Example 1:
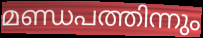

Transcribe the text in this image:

മണ്ഡപത്തിന്നും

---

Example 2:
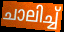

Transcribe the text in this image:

ചാലിച്ച്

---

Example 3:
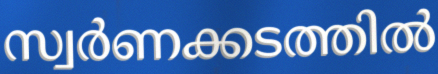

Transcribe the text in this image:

സ്വർണക്കടത്തിൽ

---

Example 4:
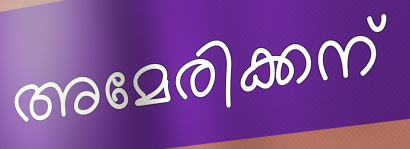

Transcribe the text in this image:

അമേരിക്കന്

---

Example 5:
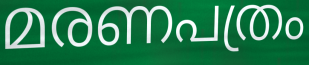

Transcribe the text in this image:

മരണപത്രം